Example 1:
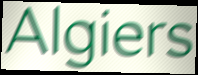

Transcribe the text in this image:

Algiers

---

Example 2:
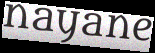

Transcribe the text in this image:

nayane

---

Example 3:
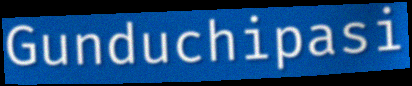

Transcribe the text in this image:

Gunduchipasi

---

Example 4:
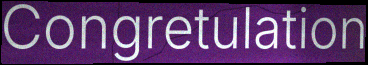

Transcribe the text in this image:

Congretulation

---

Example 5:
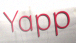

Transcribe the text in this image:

Yapp